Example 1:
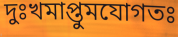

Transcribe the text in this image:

দুঃখমাপ্তুমযোগতঃ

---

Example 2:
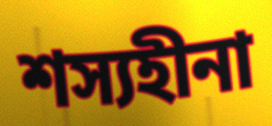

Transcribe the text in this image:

শস্যহীনা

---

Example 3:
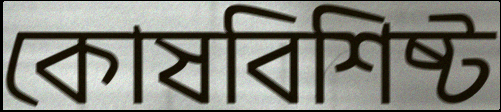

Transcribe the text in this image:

কোষবিশিষ্ট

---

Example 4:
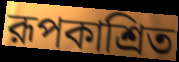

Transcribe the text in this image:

রূপকাশ্রিত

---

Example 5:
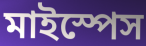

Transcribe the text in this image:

মাইস্পেস